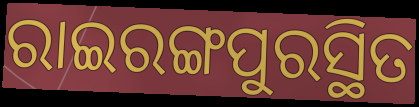
ରାଇରଙ୍ଗପୁରସ୍ଥିତ